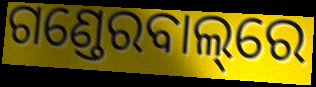
ଗଣ୍ଡେରବାଲ୍‌ରେ